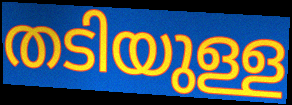
തടിയുള്ള